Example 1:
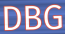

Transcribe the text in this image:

DBG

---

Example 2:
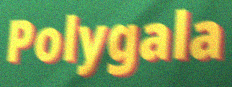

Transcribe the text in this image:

Polygala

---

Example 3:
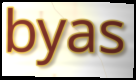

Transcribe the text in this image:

byas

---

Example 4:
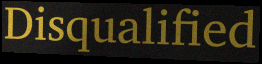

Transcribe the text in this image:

Disqualified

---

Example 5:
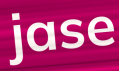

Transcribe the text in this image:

jase